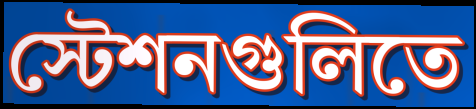
স্টেশনগুলিতে